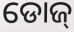
ଡୋଜ୍